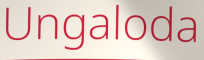
Ungaloda